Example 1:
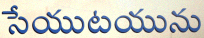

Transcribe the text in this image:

సేయుటయును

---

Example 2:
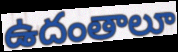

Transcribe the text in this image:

ఉదంతాలూ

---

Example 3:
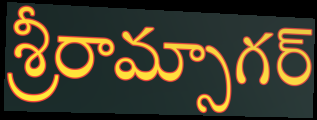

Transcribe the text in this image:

శ్రీరామ్సాగర్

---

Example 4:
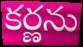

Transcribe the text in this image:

కర్ణను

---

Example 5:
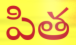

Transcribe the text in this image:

పిత